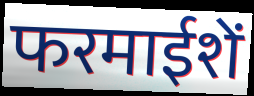
फरमाईशें